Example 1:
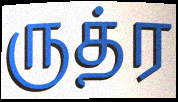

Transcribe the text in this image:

ருத்ர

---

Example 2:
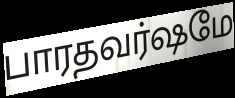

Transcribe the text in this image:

பாரதவர்ஷமே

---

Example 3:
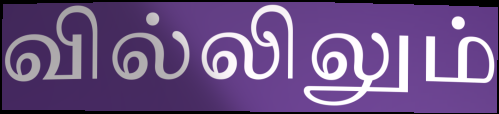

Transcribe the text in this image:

வில்லிலும்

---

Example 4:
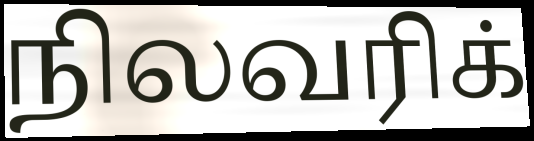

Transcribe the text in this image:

நிலவரிக்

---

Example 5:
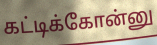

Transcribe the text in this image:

கட்டிக்கோன்னு